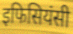
इफिसियंसी